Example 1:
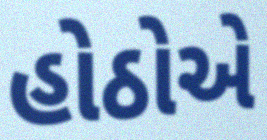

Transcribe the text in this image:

હોઠોએ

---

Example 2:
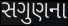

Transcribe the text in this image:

સગુણના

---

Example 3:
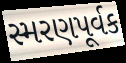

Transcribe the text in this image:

સ્મરણપૂર્વક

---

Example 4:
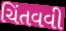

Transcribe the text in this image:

ચિંતવવી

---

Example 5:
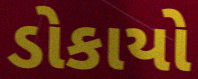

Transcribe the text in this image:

ડોકાયો